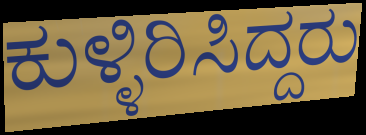
ಕುಳ್ಳಿರಿಸಿದ್ದರು